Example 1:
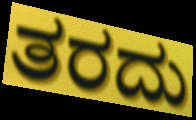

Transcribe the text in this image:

ತರದು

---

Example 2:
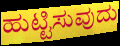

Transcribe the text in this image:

ಹುಟ್ಟಿಸುವುದು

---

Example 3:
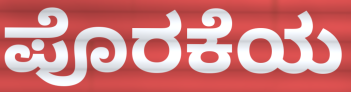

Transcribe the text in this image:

ಪೊರಕೆಯ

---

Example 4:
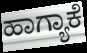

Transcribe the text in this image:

ಹಾಗ್ಯಾಕೆ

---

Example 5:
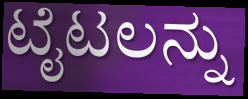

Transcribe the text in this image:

ಟೈಟಲನ್ನು